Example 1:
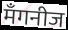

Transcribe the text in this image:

मँगनीज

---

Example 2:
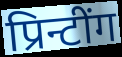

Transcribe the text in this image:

प्रिन्टींग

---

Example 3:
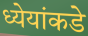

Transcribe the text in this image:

ध्येयांकडे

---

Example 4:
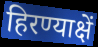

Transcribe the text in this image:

हिरण्याक्षें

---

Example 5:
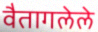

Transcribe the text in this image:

वैतागलेले